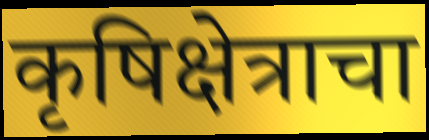
कृषिक्षेत्राचा